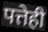
पत्तेही